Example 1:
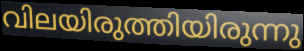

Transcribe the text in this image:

വിലയിരുത്തിയിരുന്നു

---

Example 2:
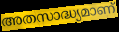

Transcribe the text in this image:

അതസാദ്ധ്യമാണ്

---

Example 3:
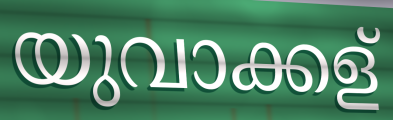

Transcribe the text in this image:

യുവാക്കള്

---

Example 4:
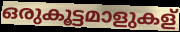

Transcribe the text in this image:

ഒരുകൂട്ടമാളുകള്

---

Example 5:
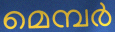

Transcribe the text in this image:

മെമ്പർ